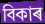
বিকাৰ